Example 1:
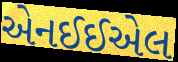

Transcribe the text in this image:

એનઈઈએલ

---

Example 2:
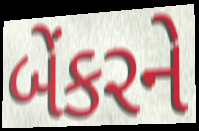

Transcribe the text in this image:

બેંકરને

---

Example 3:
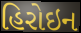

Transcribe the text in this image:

હિરોઇન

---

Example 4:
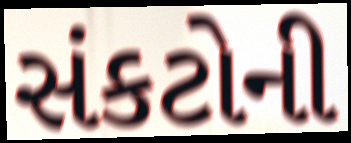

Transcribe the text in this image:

સંકટોની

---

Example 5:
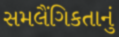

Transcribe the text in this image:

સમલૈંગિકતાનું